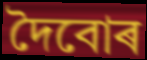
দৈবোৰ